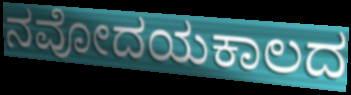
ನವೋದಯಕಾಲದ